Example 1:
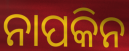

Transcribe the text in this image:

ନାପକିନ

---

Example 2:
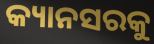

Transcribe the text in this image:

କ୍ୟାନସରକୁ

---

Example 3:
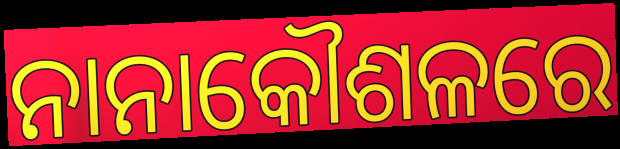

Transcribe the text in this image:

ନାନାକୌଶଳରେ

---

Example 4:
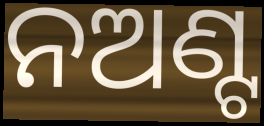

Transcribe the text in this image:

ନଅଣ୍ଟ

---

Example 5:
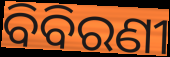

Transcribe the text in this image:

ବିବିରଣୀ